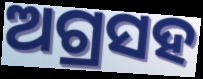
ଅଗ୍ରସହ